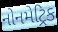
નોનમેટ્રિક